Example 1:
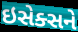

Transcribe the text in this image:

ઇસેક્સને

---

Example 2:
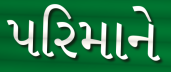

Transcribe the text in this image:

પરિમાને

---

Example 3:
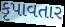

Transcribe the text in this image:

કૃપાવતાર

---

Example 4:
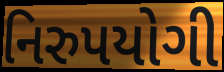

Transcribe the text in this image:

નિરુપયોગી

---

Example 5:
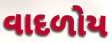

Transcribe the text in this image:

વાદળોય